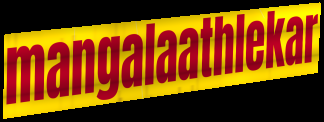
mangalaathlekar